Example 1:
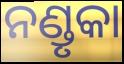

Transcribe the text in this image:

ନଣ୍ଡୃକା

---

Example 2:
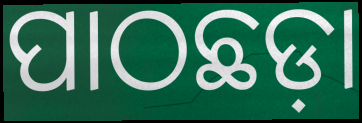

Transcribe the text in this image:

ପାଠଛଡ଼ା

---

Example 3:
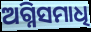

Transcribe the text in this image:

ଅଗ୍ନିସମାଧି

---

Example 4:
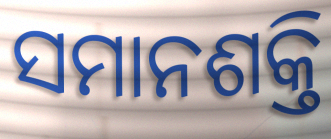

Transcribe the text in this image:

ସମାନଶକ୍ତି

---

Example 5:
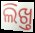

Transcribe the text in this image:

ଲିଖ୍ତ